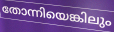
തോന്നിയെങ്കിലും